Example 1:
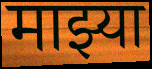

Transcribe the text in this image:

माझ्या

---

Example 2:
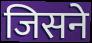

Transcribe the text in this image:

जिसने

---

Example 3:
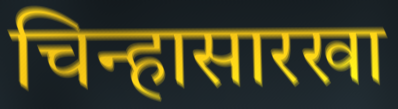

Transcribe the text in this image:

चिन्हासारखा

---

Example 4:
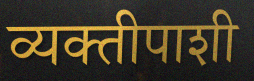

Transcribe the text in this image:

व्यक्तीपाशी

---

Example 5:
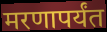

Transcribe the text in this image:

मरणापर्यंत